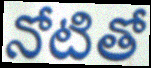
నోటితో